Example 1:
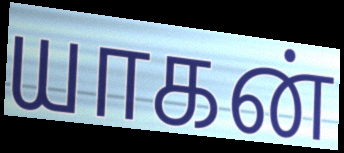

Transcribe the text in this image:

யாகன்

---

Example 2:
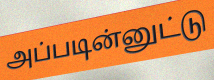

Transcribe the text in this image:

அப்படின்னுட்டு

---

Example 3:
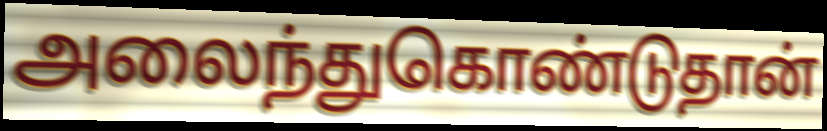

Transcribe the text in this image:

அலைந்துகொண்டுதான்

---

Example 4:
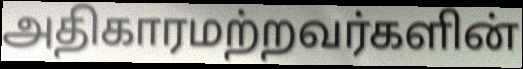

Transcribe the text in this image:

அதிகாரமற்றவர்களின்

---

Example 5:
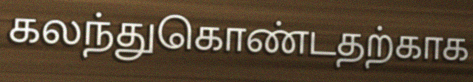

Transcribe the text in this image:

கலந்துகொண்டதற்காக